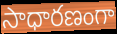
సాధారణంగా